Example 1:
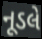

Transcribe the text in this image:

નૂડલે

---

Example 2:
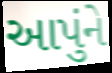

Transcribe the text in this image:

આપુંને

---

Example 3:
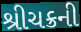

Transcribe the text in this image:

શ્રીચક્રની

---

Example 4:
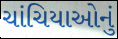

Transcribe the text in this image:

ચાંચિયાઓનું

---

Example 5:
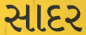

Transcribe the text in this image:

સાદર